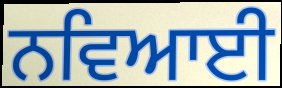
ਨਵਿਆਈ